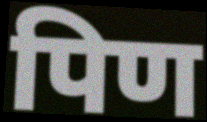
पिण